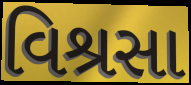
વિશ્રસા